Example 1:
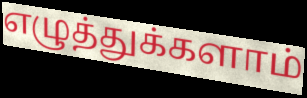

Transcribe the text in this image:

எழுத்துக்களாம்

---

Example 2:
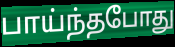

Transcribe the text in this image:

பாய்ந்தபோது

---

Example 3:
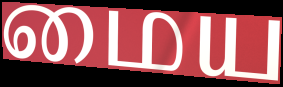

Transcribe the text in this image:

மைய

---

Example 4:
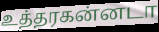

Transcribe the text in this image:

உத்தரகன்னடா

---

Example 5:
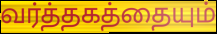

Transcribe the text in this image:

வர்த்தகத்தையும்